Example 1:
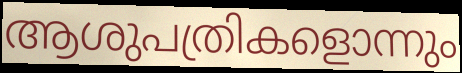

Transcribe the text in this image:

ആശുപത്രികളൊന്നും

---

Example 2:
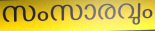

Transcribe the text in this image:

സംസാരവും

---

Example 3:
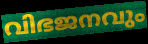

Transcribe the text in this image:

വിഭജനവും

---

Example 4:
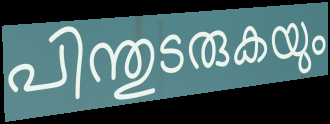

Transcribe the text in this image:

പിന്തുടരുകയും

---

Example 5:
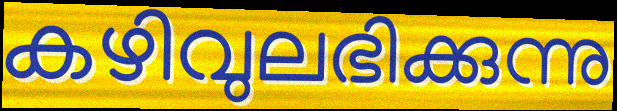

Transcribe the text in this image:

കഴിവുലഭിക്കുന്നു